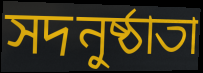
সদনুষ্ঠাতা